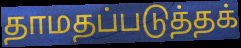
தாமதப்படுத்தக்